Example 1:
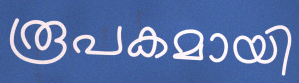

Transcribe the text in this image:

രൂപകമായി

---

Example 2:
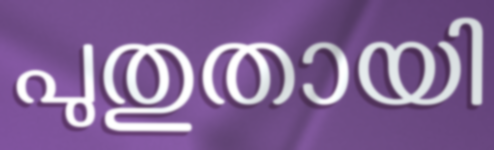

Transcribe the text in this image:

പുതുതായി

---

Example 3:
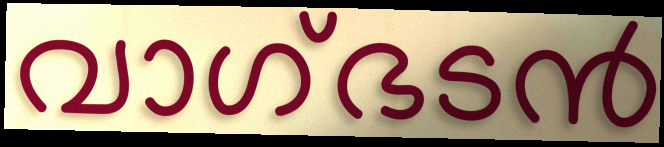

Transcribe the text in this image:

വാഗ്ഭടൻ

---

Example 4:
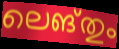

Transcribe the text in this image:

ലെങ്തും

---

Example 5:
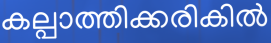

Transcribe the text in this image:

കല്പാത്തിക്കരികിൽ